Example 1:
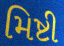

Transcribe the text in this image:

મિષ્ટી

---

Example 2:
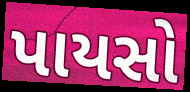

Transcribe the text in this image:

પાયસો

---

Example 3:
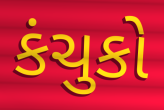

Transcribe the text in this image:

કંચુકો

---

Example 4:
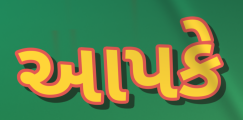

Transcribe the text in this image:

આપકે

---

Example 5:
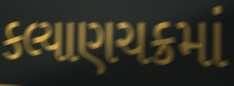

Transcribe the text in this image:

કલ્યાણચક્રમાં